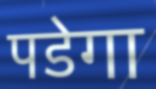
पडेगा